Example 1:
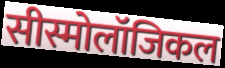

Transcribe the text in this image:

सीस्मोलॉजिकल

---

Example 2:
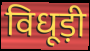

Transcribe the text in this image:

विधूड़ी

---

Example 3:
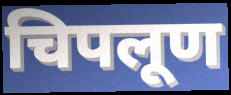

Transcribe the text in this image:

चिपलूण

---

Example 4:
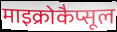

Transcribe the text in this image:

माइक्रोकैप्सूल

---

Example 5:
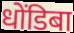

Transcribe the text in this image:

धोंडिबा